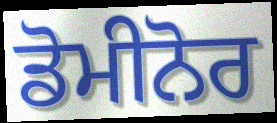
ਡੋਮੀਨੋਰ